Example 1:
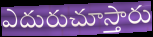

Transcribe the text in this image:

ఎదురుచూస్తారు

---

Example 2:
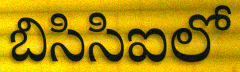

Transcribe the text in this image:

బిసిసిఐలో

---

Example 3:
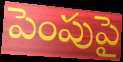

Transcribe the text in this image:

పెంపుపై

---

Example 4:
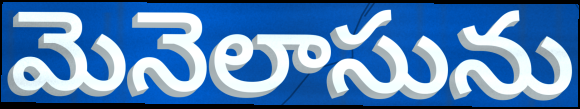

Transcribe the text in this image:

మెనెలాసును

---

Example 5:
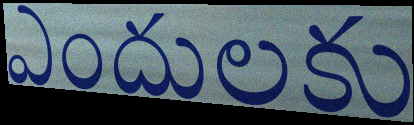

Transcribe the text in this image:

ఎందులకు